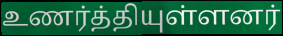
உணர்த்தியுள்ளனர்